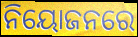
ନିୟୋଜନରେ